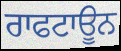
ਰਾਫਟਾਊਨ